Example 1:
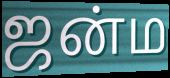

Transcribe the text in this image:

ஜன்ம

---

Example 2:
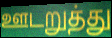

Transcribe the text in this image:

ஊடறுத்து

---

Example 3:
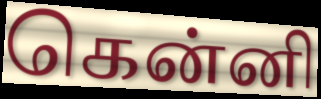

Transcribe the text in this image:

கென்னி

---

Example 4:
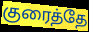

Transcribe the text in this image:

குரைத்தே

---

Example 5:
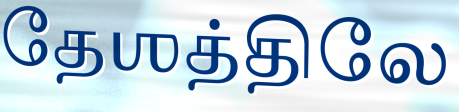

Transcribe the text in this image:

தேஶத்திலே